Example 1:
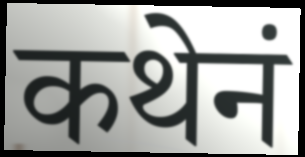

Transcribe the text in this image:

कथेनं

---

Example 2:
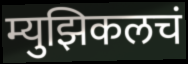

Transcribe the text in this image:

म्युझिकलचं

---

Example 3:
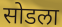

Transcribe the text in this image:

सोडला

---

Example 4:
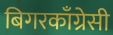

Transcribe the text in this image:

बिगरकाँग्रेसी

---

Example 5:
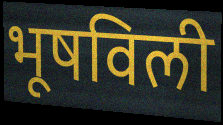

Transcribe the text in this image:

भूषविली